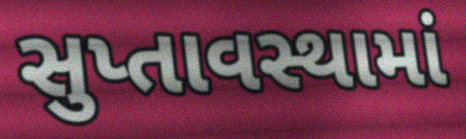
સુપ્તાવસ્થામાં